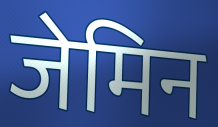
जेमिन